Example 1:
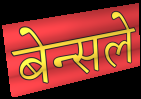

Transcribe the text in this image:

बेन्सले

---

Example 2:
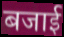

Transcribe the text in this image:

बजाई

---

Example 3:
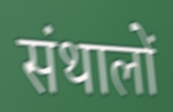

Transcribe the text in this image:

संथालों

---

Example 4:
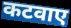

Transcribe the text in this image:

कटवाए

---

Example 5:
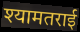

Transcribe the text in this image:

श्यामतराई